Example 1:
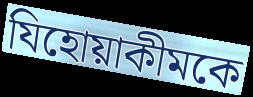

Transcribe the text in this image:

যিহোয়াকীমকে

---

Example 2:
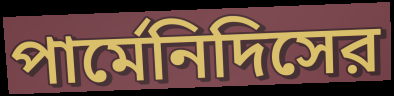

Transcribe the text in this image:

পার্মেনিদিসের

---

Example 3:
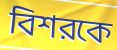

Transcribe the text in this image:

বিশরকে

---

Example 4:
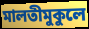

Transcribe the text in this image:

মালতীমুকুলে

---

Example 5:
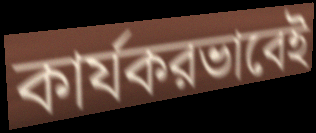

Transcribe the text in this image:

কার্যকরভাবেই